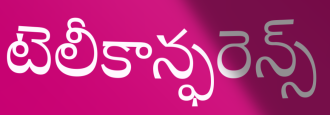
టెలీకాన్ఫరెన్స్